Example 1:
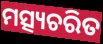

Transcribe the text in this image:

ମତ୍ସ୍ୟଚରିତ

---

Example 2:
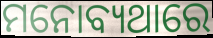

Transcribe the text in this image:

ମନୋବ୍ୟଥାରେ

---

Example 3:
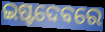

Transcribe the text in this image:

ଇଷ୍ଟଦେବରେ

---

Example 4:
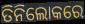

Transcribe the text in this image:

ତିନିଲୋକରେ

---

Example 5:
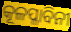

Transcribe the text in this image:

କୂଳପ୍ଳାବିନୀ